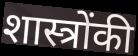
शास्त्रोंकी